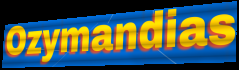
Ozymandias